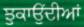
ਝੁਕਾਉਂਦੀਆਂ